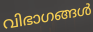
വിഭാഗങ്ങൾ